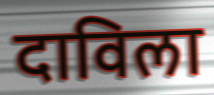
दाविला